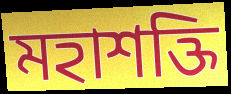
মহাশক্তি